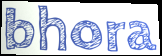
bhora